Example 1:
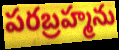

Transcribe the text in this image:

పరబ్రహ్మను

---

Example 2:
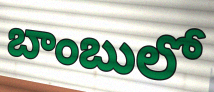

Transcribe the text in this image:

బాంబులో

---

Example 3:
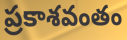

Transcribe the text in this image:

ప్రకాశవంతం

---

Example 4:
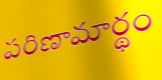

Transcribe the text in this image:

పరిణామార్థం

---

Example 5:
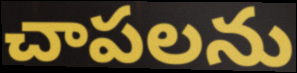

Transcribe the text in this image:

చాపలను